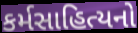
કર્મસાહિત્યનો